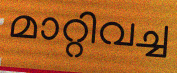
മാറ്റിവച്ച